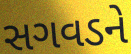
સગવડને